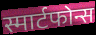
स्मार्टफोन्स